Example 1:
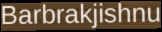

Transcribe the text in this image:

Barbrakjishnu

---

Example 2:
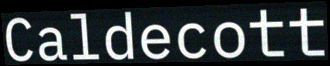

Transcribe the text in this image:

Caldecott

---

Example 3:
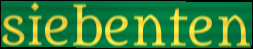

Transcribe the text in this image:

siebenten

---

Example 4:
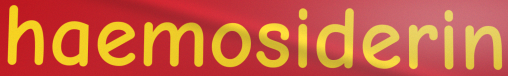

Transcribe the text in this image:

haemosiderin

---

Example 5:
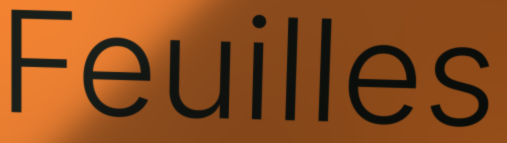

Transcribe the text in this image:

Feuilles